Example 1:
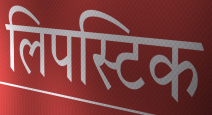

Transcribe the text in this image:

लिपस्टिक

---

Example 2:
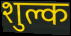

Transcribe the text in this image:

शुल्‍क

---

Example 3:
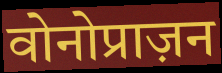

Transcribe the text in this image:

वोनोप्राज़न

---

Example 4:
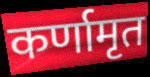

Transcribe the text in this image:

कर्णामृत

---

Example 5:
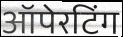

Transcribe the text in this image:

ऑपेरटिंग